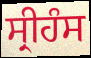
ਸ੍ਰੀਹੰਸ